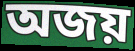
অজয়